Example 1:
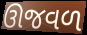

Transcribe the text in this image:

ઊજવળ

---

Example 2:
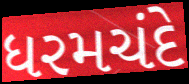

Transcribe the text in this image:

ધરમચંદે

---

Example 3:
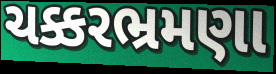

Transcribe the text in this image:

ચક્કરભ્રમણા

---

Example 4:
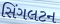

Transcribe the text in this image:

સિંગલટન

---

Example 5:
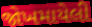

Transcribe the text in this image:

જોખમાયેલી